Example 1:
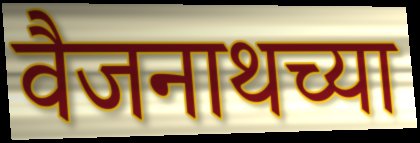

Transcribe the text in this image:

वैजनाथच्या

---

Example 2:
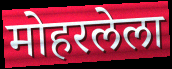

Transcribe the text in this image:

मोहरलेला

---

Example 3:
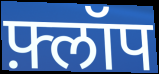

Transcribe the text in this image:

फ़्लॉप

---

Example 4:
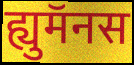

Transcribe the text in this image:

ह्युमॅनस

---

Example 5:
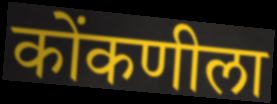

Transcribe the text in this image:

कोंकणीला